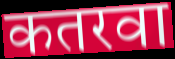
कतरवा